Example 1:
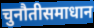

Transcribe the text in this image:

चुनौतीसमाधान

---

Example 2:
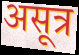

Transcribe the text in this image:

असूत्र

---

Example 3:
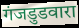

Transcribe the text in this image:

गंजडुडवारा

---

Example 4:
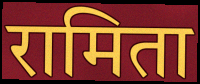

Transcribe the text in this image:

रामिता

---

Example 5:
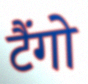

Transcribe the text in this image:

टैंगो